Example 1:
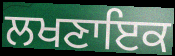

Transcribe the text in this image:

ਲਖਣਾਇਕ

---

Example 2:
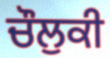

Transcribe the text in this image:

ਚੌਲੁਕੀ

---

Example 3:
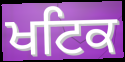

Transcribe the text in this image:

ਖਟਿਕ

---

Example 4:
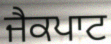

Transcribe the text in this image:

ਜੈਕਪਾਟ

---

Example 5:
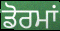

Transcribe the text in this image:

ਡੋਰਮਾਂ